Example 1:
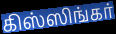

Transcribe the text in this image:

கிஸ்ஸிங்கர்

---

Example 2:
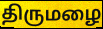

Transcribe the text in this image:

திருமழை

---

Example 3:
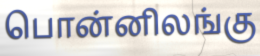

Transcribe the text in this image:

பொன்னிலங்கு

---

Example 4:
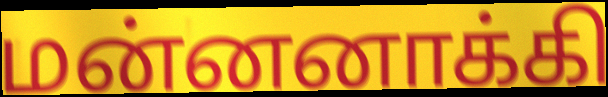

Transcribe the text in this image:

மன்னனாக்கி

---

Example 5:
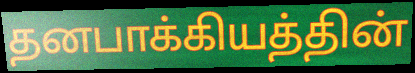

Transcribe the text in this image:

தனபாக்கியத்தின்